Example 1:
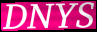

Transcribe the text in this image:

DNYS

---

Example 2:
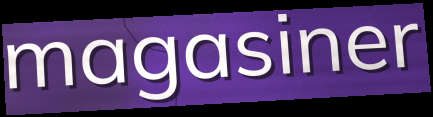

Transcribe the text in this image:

magasiner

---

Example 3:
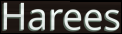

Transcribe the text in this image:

Harees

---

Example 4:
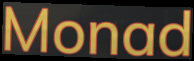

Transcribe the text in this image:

Monad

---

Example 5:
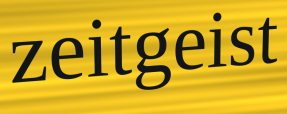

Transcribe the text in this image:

zeitgeist